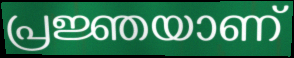
പ്രജ്ഞയാണ്